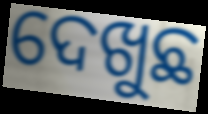
ଦେଖୁଛ